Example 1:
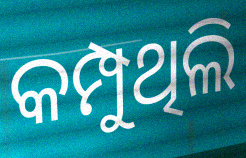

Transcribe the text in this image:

କମ୍ପୁଥିଲି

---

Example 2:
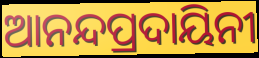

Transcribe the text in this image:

ଆନନ୍ଦପ୍ରଦାୟିନୀ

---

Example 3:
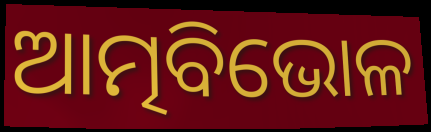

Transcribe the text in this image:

ଆତ୍ମବିଭୋଳ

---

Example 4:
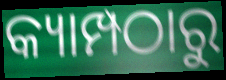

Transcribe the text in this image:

କ୍ୟାମ୍ପଠାରୁ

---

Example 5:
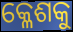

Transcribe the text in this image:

କ୍ଳେଶକୁ